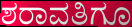
ಶರಾವತಿಗೂ